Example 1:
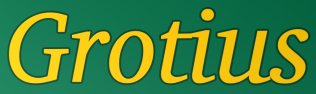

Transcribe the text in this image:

Grotius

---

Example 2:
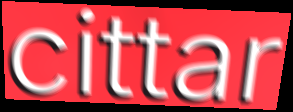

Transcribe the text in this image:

cittar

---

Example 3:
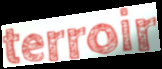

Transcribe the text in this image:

terroir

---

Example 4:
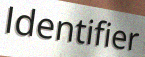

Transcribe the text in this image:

Identifier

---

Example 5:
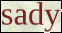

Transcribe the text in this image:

sady